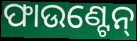
ଫାଉଣ୍ଟେନ୍